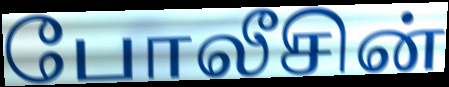
போலீசின்